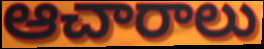
ఆచారాలు